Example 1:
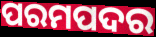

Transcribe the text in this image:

ପରମପଦର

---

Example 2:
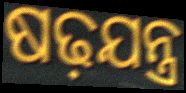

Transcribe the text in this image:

ଷଢ଼ଯନ୍ତ୍ର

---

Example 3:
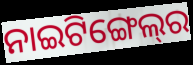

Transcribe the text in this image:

ନାଇଟିଙ୍ଗେଲ୍‌ର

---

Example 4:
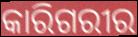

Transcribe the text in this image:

କାରିଗରୀର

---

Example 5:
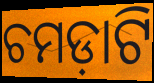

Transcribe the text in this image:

ଚମଡ଼ାଟି